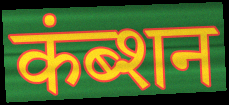
कंब्शन